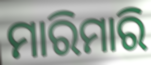
ମାରିମାରି